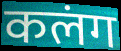
कलंग